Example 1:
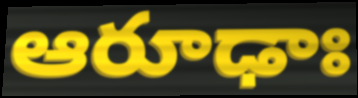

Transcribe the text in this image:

ఆరూఢాః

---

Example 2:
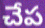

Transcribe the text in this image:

చేప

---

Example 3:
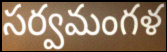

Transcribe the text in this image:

సర్వమంగళ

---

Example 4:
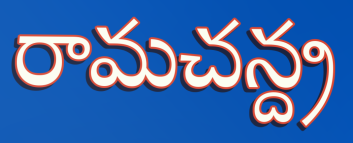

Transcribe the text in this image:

రామచన్ద్ర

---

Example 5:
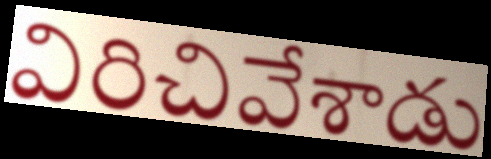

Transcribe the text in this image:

విరిచివేశాడు